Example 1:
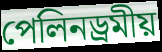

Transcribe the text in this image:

পেলিনড্ৰমীয়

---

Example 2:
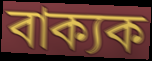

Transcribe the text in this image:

বাক্যক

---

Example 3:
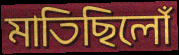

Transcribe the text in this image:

মাতিছিলোঁ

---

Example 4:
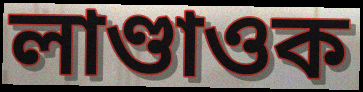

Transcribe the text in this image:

লাণ্ডাওক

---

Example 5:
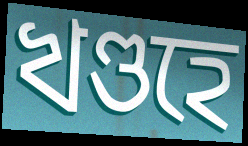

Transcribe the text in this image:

খণ্ডহে